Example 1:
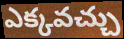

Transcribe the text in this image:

ఎక్కవచ్చు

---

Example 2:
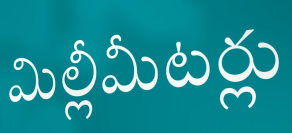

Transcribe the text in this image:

మిల్లీమీటర్లు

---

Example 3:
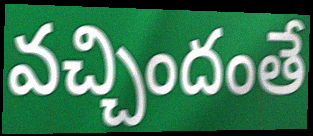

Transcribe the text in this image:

వచ్చిందంతే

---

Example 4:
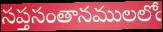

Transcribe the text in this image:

సప్తసంతానములలోఁ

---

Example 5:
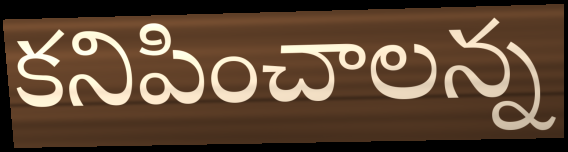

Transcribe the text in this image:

కనిపించాలన్న